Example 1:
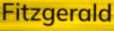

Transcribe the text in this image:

Fitzgerald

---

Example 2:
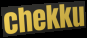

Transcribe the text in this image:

chekku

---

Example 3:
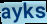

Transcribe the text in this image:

ayks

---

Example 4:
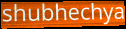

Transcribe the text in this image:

shubhechya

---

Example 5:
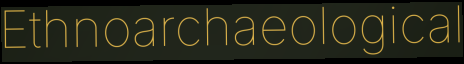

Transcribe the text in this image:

Ethnoarchaeological